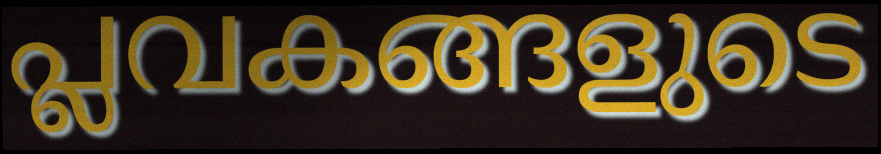
പ്ലവകങ്ങളുടെ